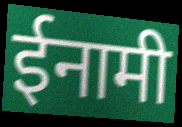
ईनामी